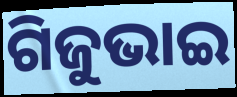
ଗିଜୁଭାଇ